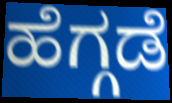
ಹೆಗ್ಗಡೆ